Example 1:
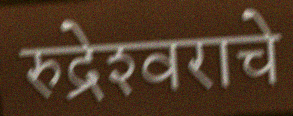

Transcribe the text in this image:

रुद्रेश्वराचे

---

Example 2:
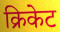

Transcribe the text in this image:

क्रिकेट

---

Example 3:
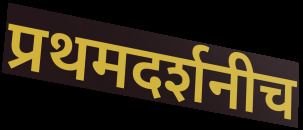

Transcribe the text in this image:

प्रथमदर्शनीच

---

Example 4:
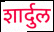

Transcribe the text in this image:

शार्दुल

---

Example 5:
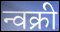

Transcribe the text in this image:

न्वक्री